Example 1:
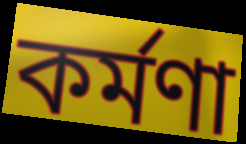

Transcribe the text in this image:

কর্মণা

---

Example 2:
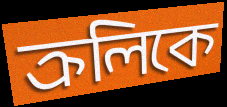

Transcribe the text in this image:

ক্রলিকে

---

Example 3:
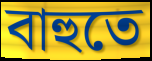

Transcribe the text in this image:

বাহুতে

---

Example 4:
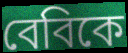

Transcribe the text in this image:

বেবিকে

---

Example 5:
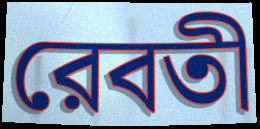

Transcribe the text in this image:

রেবতী